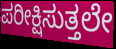
ಪರೀಕ್ಷಿಸುತ್ತಲೇ